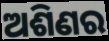
ଅଶିଣର